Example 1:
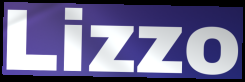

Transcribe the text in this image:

Lizzo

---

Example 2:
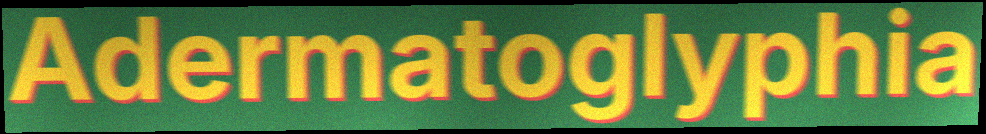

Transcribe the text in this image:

Adermatoglyphia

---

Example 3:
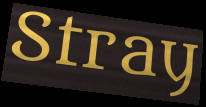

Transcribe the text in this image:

Stray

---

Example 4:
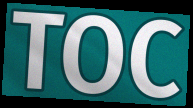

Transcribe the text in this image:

TOC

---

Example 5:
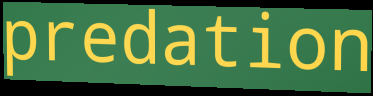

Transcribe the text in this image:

predation